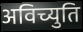
अविच्युति